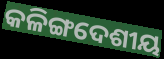
କଳିଙ୍ଗଦେଶୀୟ